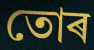
তোৰ